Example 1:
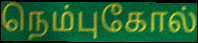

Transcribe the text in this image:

நெம்புகோல்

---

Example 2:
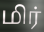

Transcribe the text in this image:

மிர்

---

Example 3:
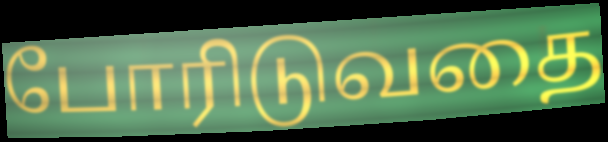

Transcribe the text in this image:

போரிடுவதை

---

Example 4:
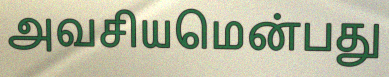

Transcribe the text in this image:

அவசியமென்பது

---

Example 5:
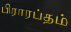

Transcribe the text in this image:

பிராரப்தம்